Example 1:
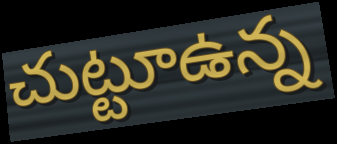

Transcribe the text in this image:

చుట్టూఉన్న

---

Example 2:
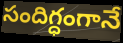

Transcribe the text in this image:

సందిగ్ధంగానే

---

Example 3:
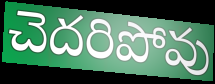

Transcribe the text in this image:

చెదరిపోవు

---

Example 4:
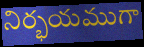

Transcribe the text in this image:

నిర్భయముగా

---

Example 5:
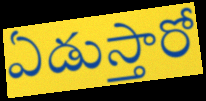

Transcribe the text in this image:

ఏడుస్తారో